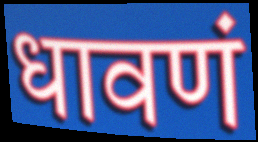
धावणं